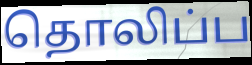
தொலிப்ப